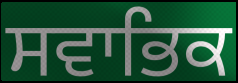
ਸਵਾਭਿਕ